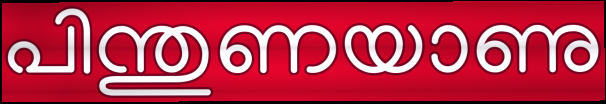
പിന്തുണയാണു